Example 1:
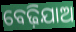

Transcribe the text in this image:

ବେଢ଼ିଯାଅ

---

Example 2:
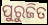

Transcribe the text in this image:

ପୁରୁଜିତ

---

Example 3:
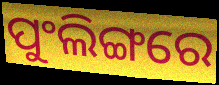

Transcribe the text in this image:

ପୁଂଲିଙ୍ଗରେ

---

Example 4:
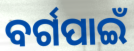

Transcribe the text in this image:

ବର୍ଗପାଇଁ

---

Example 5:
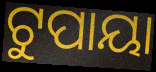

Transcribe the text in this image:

ଟୁପାୟା